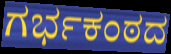
ಗರ್ಭಕಂಠದ